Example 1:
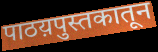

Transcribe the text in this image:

पाठय़पुस्तकातून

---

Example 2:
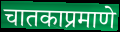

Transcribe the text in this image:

चातकाप्रमाणे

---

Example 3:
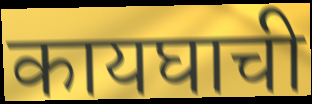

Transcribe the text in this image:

कायघाची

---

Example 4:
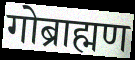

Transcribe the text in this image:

गोब्राह्मण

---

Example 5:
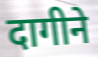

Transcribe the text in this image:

दागीने